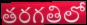
తరగతిలో